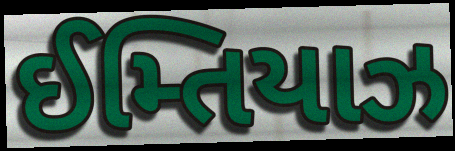
ઈમ્તિયાઝ